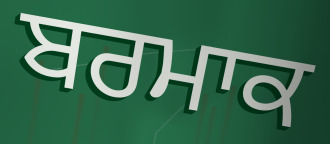
ਬਰਮਾਕ